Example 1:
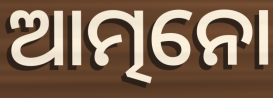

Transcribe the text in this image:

ଆତ୍ମନୋ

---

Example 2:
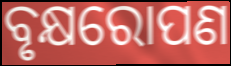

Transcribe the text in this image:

ବୃକ୍ଷରୋପଣ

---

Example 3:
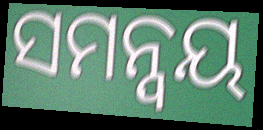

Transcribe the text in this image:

ସମନ୍ନ୍ୱୟ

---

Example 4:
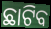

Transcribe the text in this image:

ଛାଟିବ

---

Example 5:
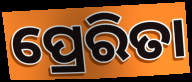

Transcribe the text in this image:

ପ୍ରେରିତା